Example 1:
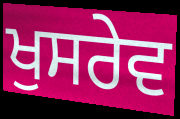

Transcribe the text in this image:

ਖੁਸਰੇਵ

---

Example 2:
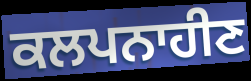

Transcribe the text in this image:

ਕਲਪਨਾਹੀਣ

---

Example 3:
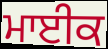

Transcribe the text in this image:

ਮਾਈਕ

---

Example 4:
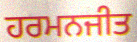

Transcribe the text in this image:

ਹਰਮਨਜੀਤ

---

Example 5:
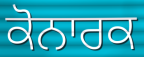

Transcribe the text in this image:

ਕੋਨਾਰਕ